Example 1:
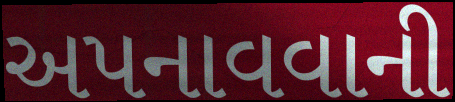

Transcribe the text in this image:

અપનાવવાની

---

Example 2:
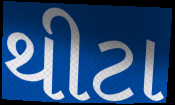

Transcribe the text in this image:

થીટા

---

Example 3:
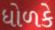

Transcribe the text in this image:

ધોળકે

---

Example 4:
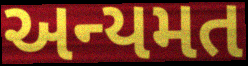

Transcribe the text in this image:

અન્યમત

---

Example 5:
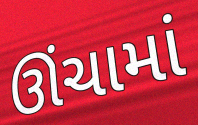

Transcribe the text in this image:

ઊંચામાં